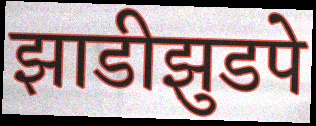
झाडीझुडपे